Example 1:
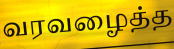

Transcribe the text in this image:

வரவழைத்த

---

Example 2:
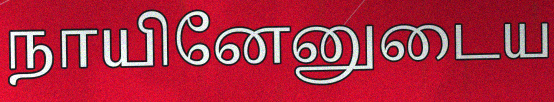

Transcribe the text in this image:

நாயினேனுடைய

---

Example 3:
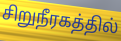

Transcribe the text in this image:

சிறுநீரகத்தில்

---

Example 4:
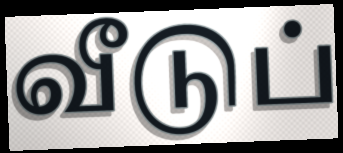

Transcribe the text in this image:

வீடுப்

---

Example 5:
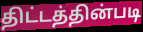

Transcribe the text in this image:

திட்டத்தின்படி